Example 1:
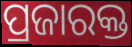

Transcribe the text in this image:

ପ୍ରଜାରକ୍ତ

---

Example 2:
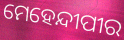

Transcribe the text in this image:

ମେହେନ୍ଦୀପୀର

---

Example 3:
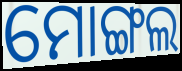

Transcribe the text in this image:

ମୋଙ୍ଗଲ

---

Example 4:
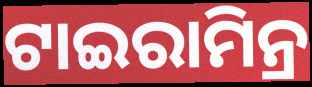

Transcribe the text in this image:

ଟାଇରାମିନ୍ର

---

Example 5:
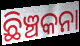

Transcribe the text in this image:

ଛିଞ୍ଚକନା